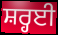
ਸ਼ਰ੍ਹਈ